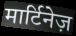
मार्टिनेज़